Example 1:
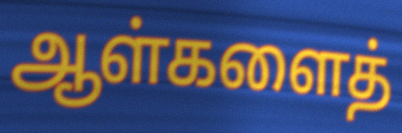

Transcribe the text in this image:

ஆள்களைத்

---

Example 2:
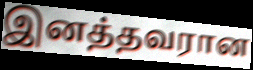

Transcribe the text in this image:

இனத்தவரான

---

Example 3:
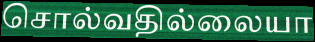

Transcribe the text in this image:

சொல்வதில்லையா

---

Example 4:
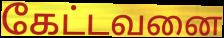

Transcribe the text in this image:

கேட்டவனை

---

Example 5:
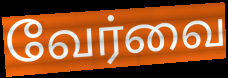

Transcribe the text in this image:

வேர்வை